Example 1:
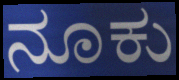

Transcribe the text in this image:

ನೂಕು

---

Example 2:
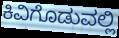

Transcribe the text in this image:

ಕಿವಿಗೊಡುವಲ್ಲಿ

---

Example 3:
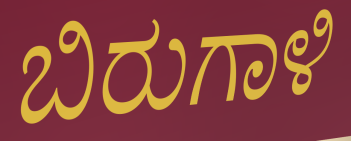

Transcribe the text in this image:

ಬಿರುಗಾಳಿ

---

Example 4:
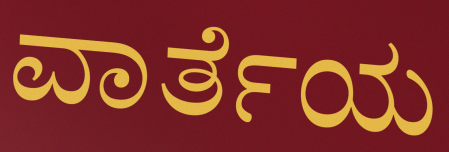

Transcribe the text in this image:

ವಾರ್ತೆಯ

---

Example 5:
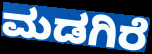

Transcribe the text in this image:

ಮಡಗಿರೆ